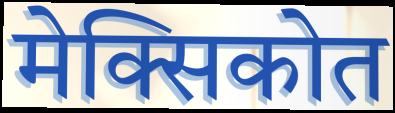
मेक्सिकोत